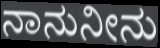
ನಾನುನೀನು